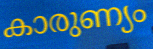
കാരുണ്യം